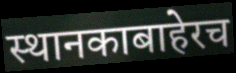
स्थानकाबाहेरच